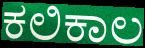
ಕಲಿಕಾಲ